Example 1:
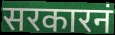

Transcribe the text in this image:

सरकारनं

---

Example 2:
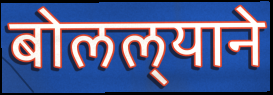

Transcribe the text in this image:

बोलल्याने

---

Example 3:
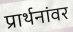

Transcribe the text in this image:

प्रार्थनांवर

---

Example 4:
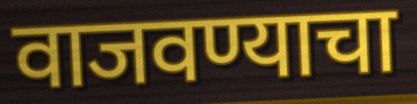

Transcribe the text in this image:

वाजवण्याचा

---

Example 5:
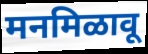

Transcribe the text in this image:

मनमिळावू